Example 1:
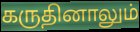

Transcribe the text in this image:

கருதினாலும்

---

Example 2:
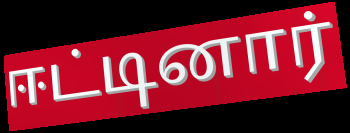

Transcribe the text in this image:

ஈட்டினார்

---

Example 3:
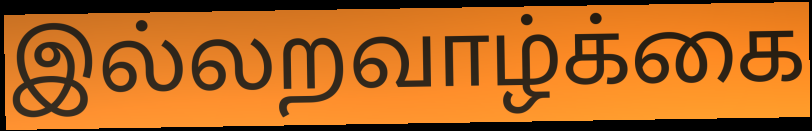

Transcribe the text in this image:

இல்லறவாழ்க்கை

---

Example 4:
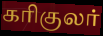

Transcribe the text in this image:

கரிகுலர்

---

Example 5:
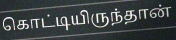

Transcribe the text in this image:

கொட்டியிருந்தான்